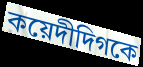
কয়েদীদিগকে